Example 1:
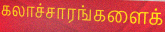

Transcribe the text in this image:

கலாச்சாரங்களைக்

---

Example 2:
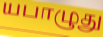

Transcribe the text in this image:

யபாழுது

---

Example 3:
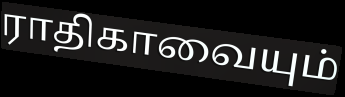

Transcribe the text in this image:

ராதிகாவையும்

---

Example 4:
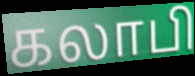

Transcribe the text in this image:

கலாபி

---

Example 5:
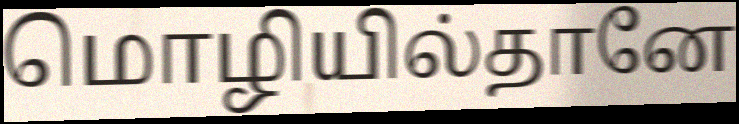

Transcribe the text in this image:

மொழியில்தானே